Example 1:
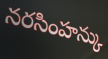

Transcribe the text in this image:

నరసింహన్కు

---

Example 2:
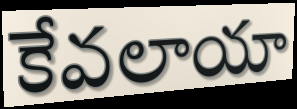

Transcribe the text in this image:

కేవలాయా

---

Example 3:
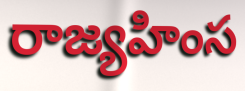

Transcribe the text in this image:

రాజ్యహింస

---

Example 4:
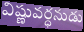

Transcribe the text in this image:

విష్ణువర్ధనుడు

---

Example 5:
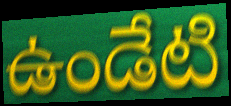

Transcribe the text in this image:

ఉండేటి